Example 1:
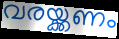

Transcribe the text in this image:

വരയ്ക്കണം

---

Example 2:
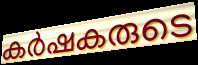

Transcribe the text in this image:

കർഷകരുടെ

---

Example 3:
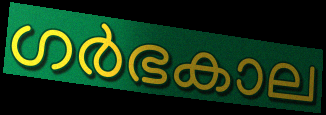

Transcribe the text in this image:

ഗർഭകാല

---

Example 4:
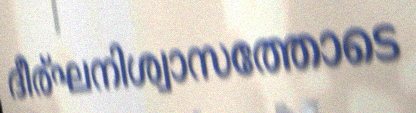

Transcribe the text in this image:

ദീര്ഘനിശ്വാസത്തോടെ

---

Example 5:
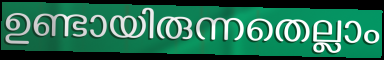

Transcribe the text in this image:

ഉണ്ടായിരുന്നതെല്ലാം